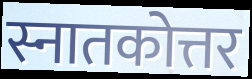
स्नातकोत्तर